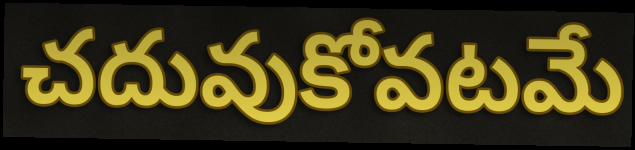
చదువుకోవటమే